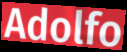
Adolfo